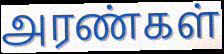
அரண்கள்